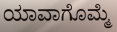
ಯಾವಾಗೊಮ್ಮೆ